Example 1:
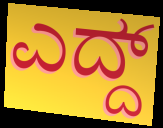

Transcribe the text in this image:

ಎದ್ದ್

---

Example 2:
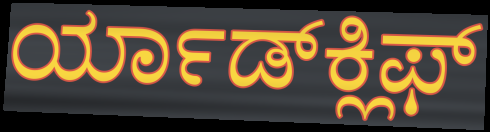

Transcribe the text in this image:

ರ್ಯಾಡ್‍ಕ್ಲಿಫ್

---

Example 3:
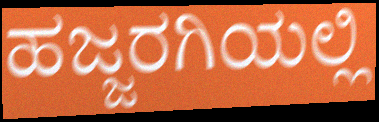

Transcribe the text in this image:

ಹಜ್ಜರಗಿಯಲ್ಲಿ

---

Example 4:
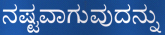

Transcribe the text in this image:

ನಷ್ಟವಾಗುವುದನ್ನು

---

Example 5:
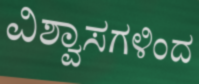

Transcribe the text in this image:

ವಿಶ್ವಾಸಗಳಿಂದ